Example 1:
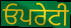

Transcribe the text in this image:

ਓਪਰੇਟੀ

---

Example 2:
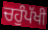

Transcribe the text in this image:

ਚਹੁੰਪੱਖੀ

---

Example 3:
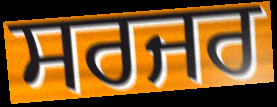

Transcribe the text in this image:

ਸਰਜਰ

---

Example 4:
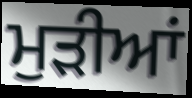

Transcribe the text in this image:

ਮੁੜੀਆਂ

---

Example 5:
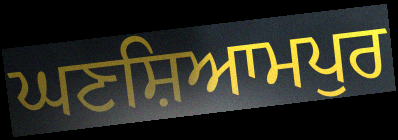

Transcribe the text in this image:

ਘਣਸ਼ਿਆਮਪੁਰ